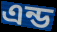
এন্ড